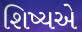
શિષ્યએ